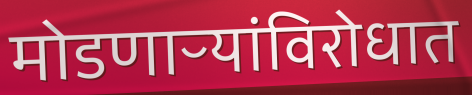
मोडणाऱ्यांविरोधात